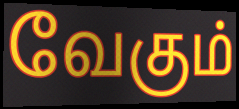
வேகும்